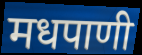
मधपाणी